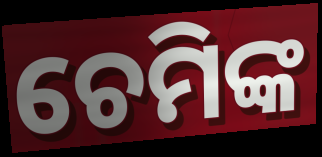
ଚେମିଙ୍କ